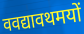
ववद्यावथमयों